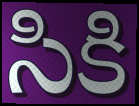
సికి